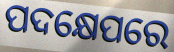
ପଦକ୍ଷେପରେ